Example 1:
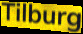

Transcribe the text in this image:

Tilburg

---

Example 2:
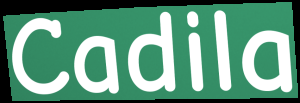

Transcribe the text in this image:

Cadila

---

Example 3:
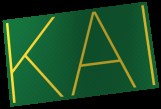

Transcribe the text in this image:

KAI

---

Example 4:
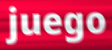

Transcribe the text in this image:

juego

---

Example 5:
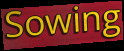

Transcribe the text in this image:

Sowing